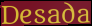
Desada